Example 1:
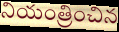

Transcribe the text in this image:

నియంత్రించిన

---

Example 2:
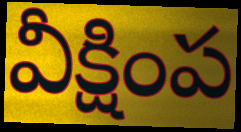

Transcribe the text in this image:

వీక్షింప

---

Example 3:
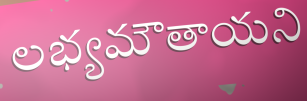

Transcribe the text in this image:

లభ్యమౌతాయని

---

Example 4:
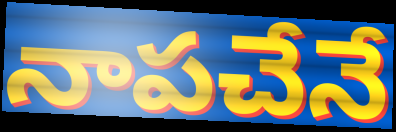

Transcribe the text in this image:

నాపచేనే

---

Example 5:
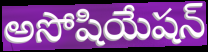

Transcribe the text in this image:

అసోషియేషన్